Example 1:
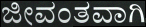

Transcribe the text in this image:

ಜೀವಂತವಾಗಿ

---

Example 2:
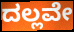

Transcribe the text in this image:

ದಲ್ಲವೇ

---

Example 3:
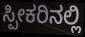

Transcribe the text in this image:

ಸ್ಪೀಕರಿನಲ್ಲಿ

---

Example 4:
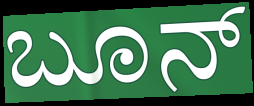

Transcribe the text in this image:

ಬೂನ್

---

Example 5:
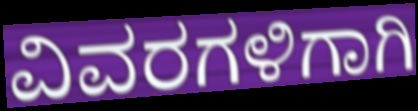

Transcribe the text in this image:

ವಿವರಗಳಿಗಾಗಿ